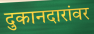
दुकानदारांवर